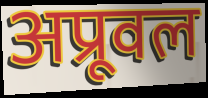
अप्रूवल